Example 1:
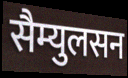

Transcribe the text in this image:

सैम्युलसन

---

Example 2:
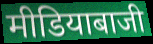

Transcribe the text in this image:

मीडियाबाजी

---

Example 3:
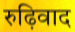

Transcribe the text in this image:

रुढ़िवाद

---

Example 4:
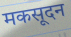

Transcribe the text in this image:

मकसूदन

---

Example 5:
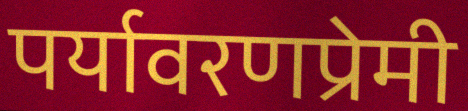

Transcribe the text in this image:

पर्यावरणप्रेमी